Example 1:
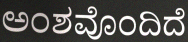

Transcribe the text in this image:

ಅಂಶವೊಂದಿದೆ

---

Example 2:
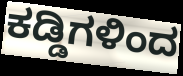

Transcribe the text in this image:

ಕಡ್ಡಿಗಳಿಂದ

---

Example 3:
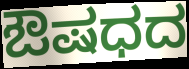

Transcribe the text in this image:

ಔಷಧದ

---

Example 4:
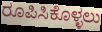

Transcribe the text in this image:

ರೂಪಿಸಿಕೊಳ್ಳಲು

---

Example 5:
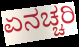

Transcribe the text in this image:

ಏನಚ್ಚರಿ